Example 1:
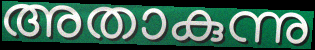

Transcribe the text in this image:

അതാകുന്നു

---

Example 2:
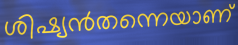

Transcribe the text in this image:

ശിഷ്യൻതന്നെയാണ്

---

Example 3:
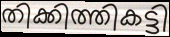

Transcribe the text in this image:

തിക്കിത്തികട്ടി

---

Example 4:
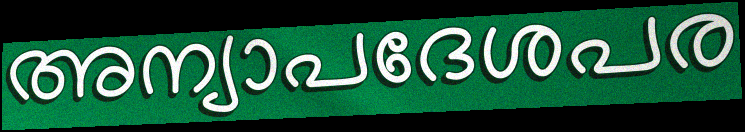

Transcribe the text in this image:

അന്യാപദേശപര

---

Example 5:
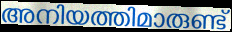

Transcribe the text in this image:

അനിയത്തിമാരുണ്ട്